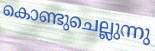
കൊണ്ടുചെല്ലുന്നു